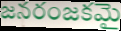
జనరంజకమై